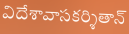
విదేశావాసకర్శితాన్